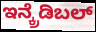
ಇನ್ಕ್ರೆಡಿಬಲ್